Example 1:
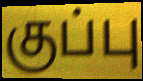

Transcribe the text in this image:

குப்பு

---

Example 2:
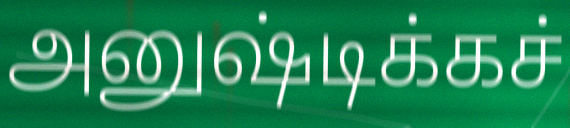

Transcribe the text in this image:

அனுஷ்டிக்கச்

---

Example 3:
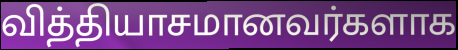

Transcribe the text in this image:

வித்தியாசமானவர்களாக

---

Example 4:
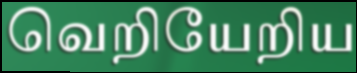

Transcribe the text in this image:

வெறியேறிய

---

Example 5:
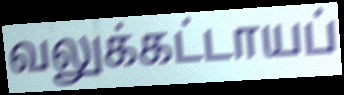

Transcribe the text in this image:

வலுக்கட்டாயப்